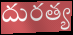
దురత్య